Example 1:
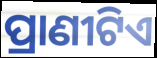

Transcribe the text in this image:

ପ୍ରାଣୀଟିଏ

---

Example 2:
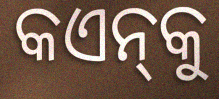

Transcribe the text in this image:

କଏନ୍‌କୁ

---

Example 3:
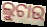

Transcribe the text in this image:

ଲୁଚାଉ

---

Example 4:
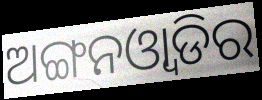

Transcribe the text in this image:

ଅଙ୍ଗନଓ୍ବାଡିର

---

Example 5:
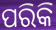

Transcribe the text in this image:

ପରିକି